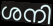
ശനി